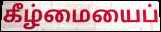
கீழ்மையைப்